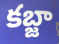
కబ్జా